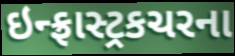
ઇન્ફ્રાસ્ટ્રકચરના